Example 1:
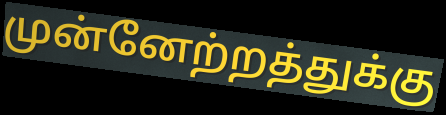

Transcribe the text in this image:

முன்னேற்றத்துக்கு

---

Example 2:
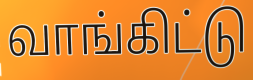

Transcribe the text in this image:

வாங்கிட்டு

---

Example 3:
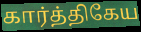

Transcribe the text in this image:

கார்த்திகேய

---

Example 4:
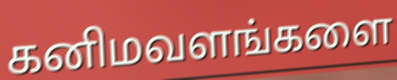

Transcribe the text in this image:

கனிமவளங்களை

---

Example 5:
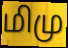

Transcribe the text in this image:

மிமு